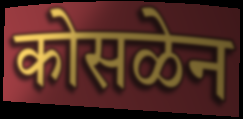
कोसळेन